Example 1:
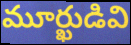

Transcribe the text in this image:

మూర్ఖుడివి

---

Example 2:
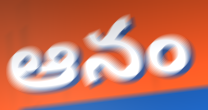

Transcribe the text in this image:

ఆనం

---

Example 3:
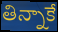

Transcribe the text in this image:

తిన్నాకే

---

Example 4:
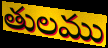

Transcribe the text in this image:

తులము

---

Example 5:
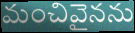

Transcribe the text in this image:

మంచివైనను